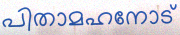
പിതാമഹനോട്